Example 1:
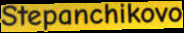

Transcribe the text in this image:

Stepanchikovo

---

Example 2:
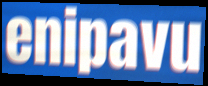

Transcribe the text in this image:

enipavu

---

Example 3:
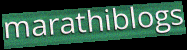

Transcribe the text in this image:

marathiblogs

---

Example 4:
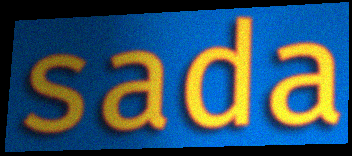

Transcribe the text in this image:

sada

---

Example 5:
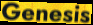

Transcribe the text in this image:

Genesis